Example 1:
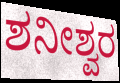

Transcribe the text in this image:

ಶನೀಶ್ವರ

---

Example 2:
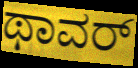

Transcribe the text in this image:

ಥಾವರ್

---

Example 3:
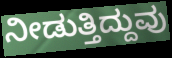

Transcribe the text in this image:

ನೀಡುತ್ತಿದ್ದುವು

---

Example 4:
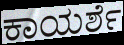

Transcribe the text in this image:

ಕಾಯರ್ಶೆ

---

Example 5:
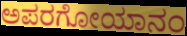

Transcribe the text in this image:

ಅಪರಗೋಯಾನಂ